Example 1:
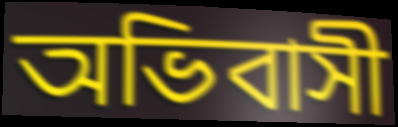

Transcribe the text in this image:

অভিবাসী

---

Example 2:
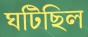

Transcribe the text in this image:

ঘটিছিল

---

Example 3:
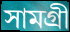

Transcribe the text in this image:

সামগ্ৰী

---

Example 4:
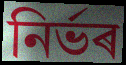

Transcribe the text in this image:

নিৰ্ভৰ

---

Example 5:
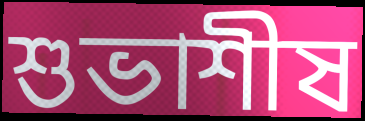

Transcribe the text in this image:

শুভাশীষ